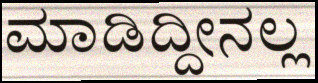
ಮಾಡಿದ್ದೀನಲ್ಲ